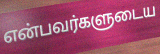
என்பவர்களுடைய